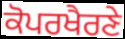
ਕੋਪਰਖੈਰਣੇ